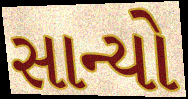
સાન્યો